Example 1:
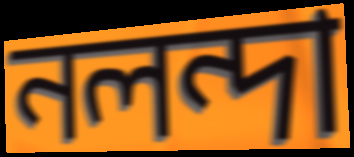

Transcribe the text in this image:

নলন্দা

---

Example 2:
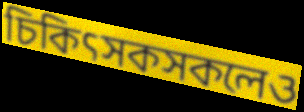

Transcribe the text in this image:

চিকিৎসকসকলেও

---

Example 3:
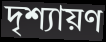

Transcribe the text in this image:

দৃশ্যায়ণ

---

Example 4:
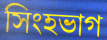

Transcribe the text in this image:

সিংহভাগ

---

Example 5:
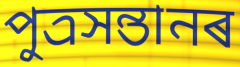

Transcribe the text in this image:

পুত্ৰসন্তানৰ